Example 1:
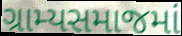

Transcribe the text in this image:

ગ્રામ્યસમાજમાં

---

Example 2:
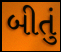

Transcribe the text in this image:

બીતું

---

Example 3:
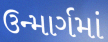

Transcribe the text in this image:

ઉન્માર્ગમાં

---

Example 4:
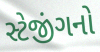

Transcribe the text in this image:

સ્ટેજીંગનો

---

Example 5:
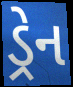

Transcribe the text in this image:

ડ્રેન